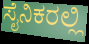
ಸೈನಿಕರಲ್ಲಿ